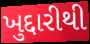
ખુદ્દારીથી